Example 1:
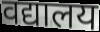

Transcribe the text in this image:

वद्यालय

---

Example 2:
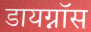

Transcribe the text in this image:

डायग्नॉस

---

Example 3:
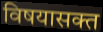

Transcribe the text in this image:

विषयासक्त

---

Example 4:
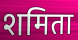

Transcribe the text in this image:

शमिता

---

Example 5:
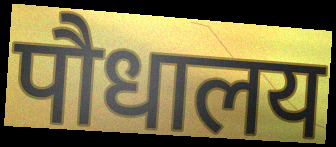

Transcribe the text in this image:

पौधालय